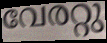
വേരറ്റു